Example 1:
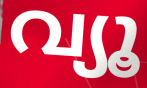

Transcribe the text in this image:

വ്യൂ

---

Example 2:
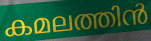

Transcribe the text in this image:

കമലത്തിൻ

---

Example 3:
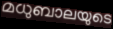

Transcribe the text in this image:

മധുബാലയുടെ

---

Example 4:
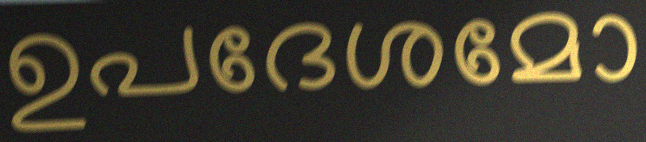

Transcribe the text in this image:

ഉപദേശമോ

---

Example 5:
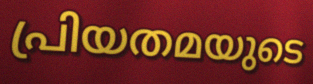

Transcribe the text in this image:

പ്രിയതമയുടെ